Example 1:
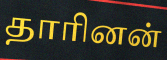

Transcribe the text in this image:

தாரினன்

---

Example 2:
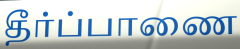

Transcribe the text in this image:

தீர்ப்பாணை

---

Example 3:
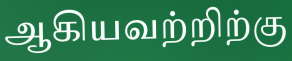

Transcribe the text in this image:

ஆகியவற்றிற்கு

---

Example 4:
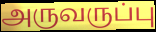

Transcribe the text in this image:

அருவருப்பு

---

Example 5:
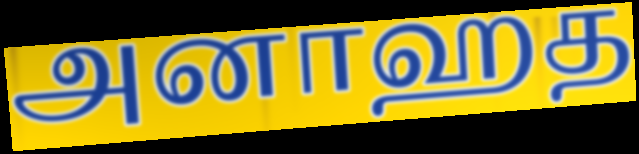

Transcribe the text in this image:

அனாஹத